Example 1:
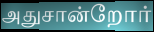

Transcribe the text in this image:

அதுசான்றோர்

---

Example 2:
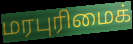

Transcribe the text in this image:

மரபுரிமைக்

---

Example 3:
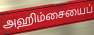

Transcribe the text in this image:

அஹிம்சையைப்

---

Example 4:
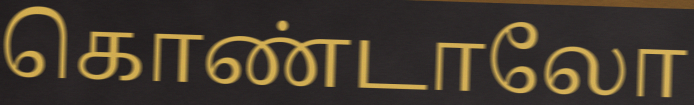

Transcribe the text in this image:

கொண்டாலோ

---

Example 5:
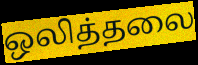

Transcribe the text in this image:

ஒலித்தலை